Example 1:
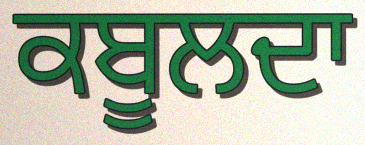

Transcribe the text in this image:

ਕਬੂਲਦਾ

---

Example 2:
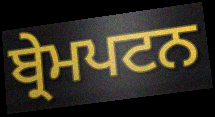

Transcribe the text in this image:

ਬ੍ਰੇਮਪਟਨ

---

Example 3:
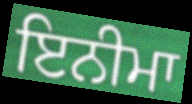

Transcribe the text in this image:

ਇਨੀਮਾ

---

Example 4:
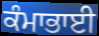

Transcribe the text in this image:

ਕੰਮਾਭਾਈ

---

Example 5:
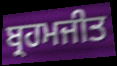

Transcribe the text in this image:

ਬ੍ਰਹਮਜੀਤ